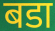
बडा